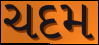
ચદમ